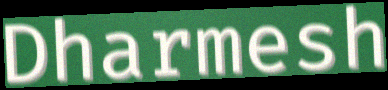
Dharmesh